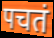
पचतं